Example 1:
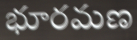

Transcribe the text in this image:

భూరమణ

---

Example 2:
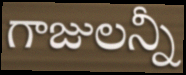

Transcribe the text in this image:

గాజులన్నీ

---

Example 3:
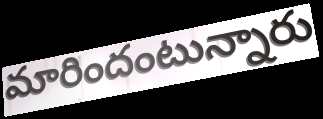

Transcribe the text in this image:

మారిందంటున్నారు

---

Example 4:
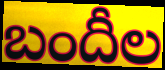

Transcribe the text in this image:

బందీల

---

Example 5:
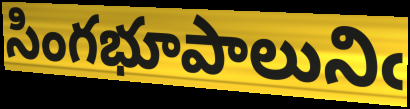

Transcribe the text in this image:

సింగభూపాలునిఁ